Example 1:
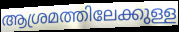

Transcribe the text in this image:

ആശ്രമത്തിലേക്കുള്ള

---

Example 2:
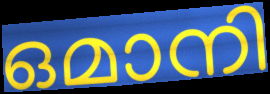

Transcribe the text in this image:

ഒമാനി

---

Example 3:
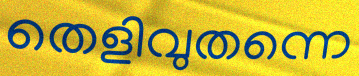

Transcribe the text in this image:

തെളിവുതന്നെ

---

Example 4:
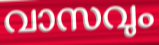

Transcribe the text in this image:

വാസവും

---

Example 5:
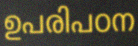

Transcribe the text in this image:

ഉപരിപഠന